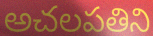
అచలపతిని